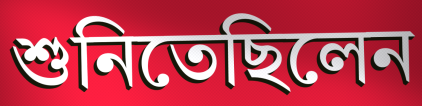
শুনিতেছিলেন